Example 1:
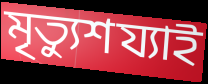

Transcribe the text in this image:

মৃত্যুশয্যাই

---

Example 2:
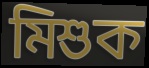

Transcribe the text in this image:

মিশুক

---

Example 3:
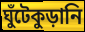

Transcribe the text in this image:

ঘুঁটেকুড়ানি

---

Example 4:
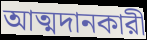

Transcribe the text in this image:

আত্মদানকারী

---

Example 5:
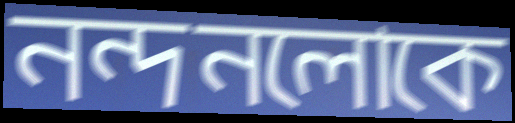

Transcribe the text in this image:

নন্দনলোকে